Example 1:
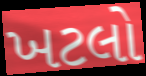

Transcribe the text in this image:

ખટલો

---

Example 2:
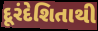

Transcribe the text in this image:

દૂરંદેશિતાથી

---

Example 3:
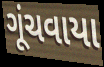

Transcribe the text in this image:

ગૂંચવાયા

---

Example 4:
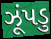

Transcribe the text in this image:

ઝૂંપડુ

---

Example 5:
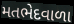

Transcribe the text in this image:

મતભેદવાળા